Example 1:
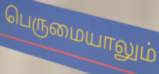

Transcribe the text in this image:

பெருமையாலும்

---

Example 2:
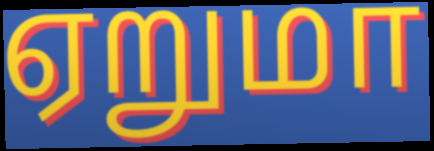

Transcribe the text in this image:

ஏறுமா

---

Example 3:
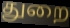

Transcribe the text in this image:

துறை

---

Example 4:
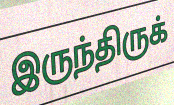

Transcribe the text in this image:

இருந்திருக்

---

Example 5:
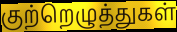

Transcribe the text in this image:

குற்றெழுத்துகள்